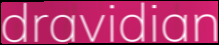
dravidian